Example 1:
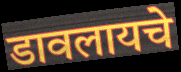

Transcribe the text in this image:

डावलायचे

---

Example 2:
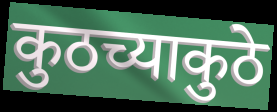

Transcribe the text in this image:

कुठच्याकुठे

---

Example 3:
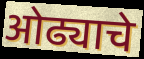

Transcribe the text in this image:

ओढ्याचे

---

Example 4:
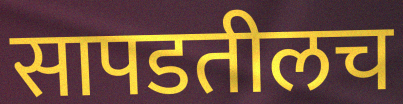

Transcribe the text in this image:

सापडतीलच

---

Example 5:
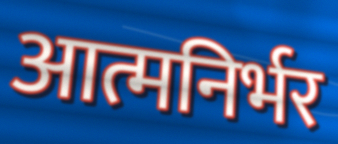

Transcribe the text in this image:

आत्मनिर्भर